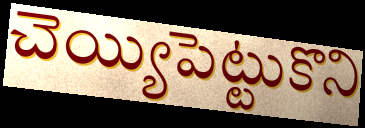
చెయ్యిపెట్టుకొని